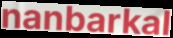
nanbarkal